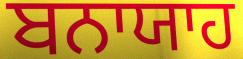
ਬਨਾਯਾਹ